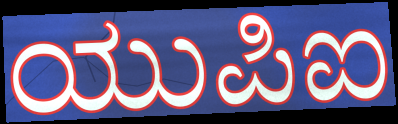
ಯುಪಿಐ